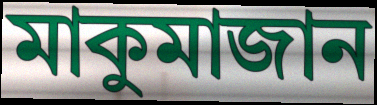
মাকুমাজান